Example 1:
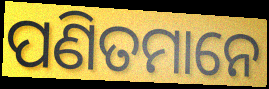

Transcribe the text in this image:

ପଣିତମାନେ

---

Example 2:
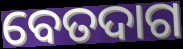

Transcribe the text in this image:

ବେତଦାଗ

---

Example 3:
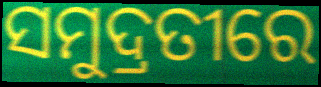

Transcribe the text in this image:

ସମୁଦ୍ରତୀରେ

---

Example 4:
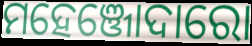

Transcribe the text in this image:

ମହେଞ୍ଜୋଦାରୋ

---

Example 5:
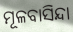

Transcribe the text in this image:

ମୂଳବାସିନ୍ଦା